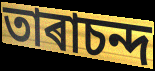
তাৰাচন্দ